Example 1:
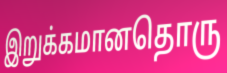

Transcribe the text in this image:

இறுக்கமானதொரு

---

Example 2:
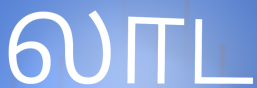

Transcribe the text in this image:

லாட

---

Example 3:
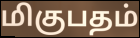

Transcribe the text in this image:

மிகுபதம்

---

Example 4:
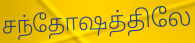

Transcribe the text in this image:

சந்தோஷத்திலே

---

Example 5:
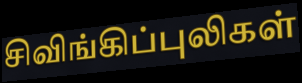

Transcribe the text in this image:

சிவிங்கிப்புலிகள்